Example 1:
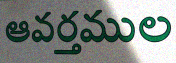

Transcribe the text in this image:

ఆవర్తముల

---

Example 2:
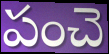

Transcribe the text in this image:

పంచె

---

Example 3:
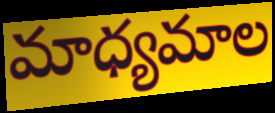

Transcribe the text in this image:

మాధ్యమాల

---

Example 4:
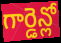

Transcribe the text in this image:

గార్డెన్లో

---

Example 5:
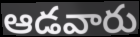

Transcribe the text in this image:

ఆడవారు